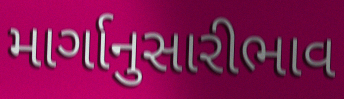
માર્ગાનુસારીભાવ